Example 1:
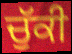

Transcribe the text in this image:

ਚੁੱਕੀ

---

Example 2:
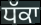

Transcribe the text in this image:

ਧੱਕਾ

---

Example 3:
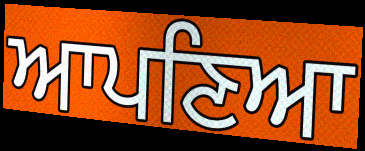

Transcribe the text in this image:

ਆਪਣਿਆ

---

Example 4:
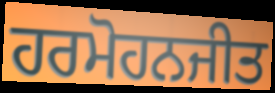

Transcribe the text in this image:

ਹਰਮੋਹਨਜੀਤ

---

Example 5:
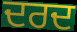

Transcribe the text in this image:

ਦਰਦ